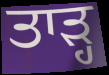
ਤਾੜ੍ਹ